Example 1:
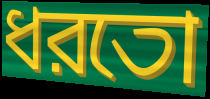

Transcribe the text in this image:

ধরতো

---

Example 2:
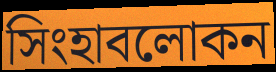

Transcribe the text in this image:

সিংহাবলোকন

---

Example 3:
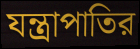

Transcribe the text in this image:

যন্ত্রাপাতির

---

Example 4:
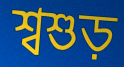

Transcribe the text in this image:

শ্বশুড়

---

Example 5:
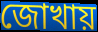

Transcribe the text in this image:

জোখায়